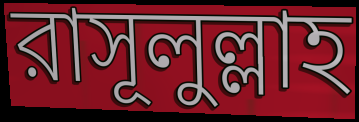
রাসূলুল্লাহ